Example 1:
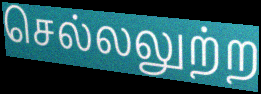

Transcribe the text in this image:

செல்லலுற்ற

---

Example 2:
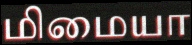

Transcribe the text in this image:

மிமையா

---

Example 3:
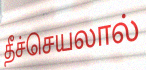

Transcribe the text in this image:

தீச்செயலால்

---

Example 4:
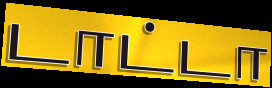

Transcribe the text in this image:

டாட்டா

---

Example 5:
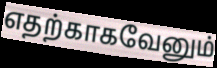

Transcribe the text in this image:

எதற்காகவேனும்